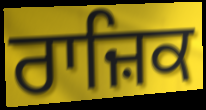
ਰਾਜ਼ਿਕ